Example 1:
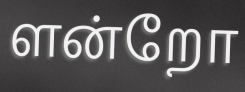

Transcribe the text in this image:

ளன்றோ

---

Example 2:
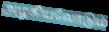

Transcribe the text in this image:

அழகியலோடும்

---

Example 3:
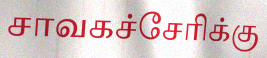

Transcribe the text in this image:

சாவகச்சேரிக்கு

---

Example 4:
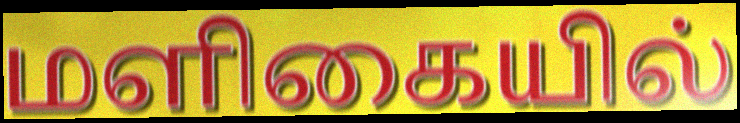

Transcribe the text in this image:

மளிகையில்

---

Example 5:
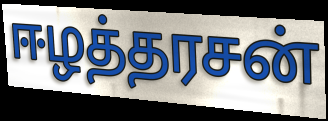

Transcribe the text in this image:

ஈழத்தரசன்